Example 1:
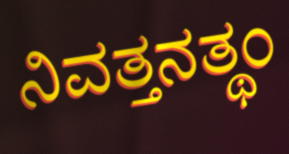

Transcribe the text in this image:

ನಿವತ್ತನತ್ಥಂ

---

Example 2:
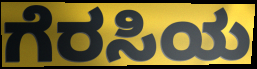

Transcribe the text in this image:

ಗೆರಸಿಯ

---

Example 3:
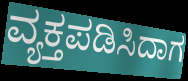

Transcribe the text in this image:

ವ್ಯಕ್ತಪಡಿಸಿದಾಗ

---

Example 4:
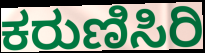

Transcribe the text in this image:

ಕರುಣಿಸಿರಿ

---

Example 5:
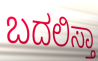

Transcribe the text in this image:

ಬದಲಿಸ್ತಾ